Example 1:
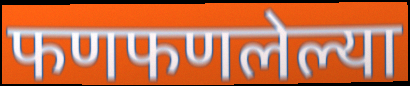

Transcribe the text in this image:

फणफणलेल्या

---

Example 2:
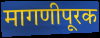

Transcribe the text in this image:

मागणीपूरक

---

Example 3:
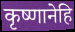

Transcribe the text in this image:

कृष्णानेहि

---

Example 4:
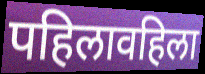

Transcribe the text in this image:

पहिलावहिला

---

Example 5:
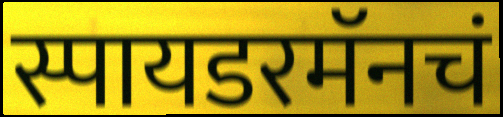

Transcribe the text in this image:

स्पायडरमॅनचं